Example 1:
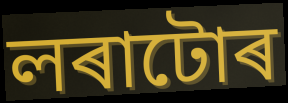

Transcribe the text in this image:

লৰাটোৰ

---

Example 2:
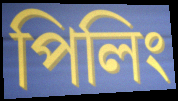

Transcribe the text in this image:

পিলিং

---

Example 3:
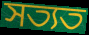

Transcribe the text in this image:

সত্যত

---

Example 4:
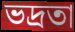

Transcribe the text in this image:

ভদ্ৰতা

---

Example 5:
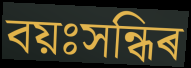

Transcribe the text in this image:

বয়ঃসন্ধিৰ